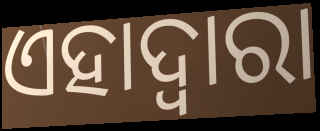
ଏହାଦ୍ୱାରା